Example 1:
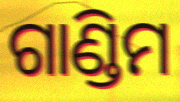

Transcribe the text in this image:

ଗାଣ୍ଡିମ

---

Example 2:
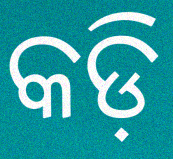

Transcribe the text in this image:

କଡ଼ି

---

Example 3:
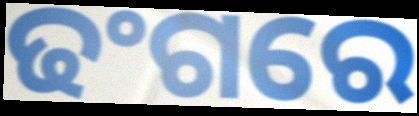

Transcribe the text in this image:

ଢଂଗରେ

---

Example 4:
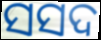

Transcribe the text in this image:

ସସଦ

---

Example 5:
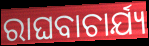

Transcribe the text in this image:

ରାଘବାଚାର୍ଯ୍ୟ